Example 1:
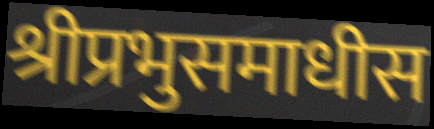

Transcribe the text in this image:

श्रीप्रभुसमाधीस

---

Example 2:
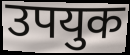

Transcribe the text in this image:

उपयुक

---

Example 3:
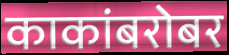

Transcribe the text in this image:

काकांबरोबर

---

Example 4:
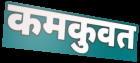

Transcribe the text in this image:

कमकुवत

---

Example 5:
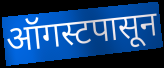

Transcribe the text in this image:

ऑगस्टपासून